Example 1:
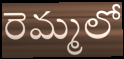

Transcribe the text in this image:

రెమ్మలో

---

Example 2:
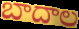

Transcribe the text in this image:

బాదాల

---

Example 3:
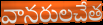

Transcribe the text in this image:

వానరులచేత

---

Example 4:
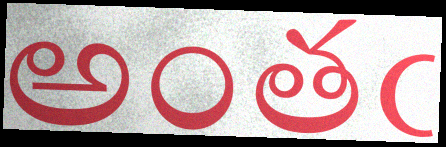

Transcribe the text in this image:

అంతఁ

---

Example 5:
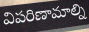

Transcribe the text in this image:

విపరిణామాల్ని